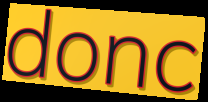
donc